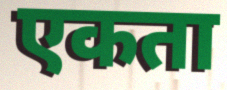
एकता